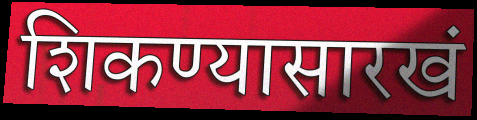
शिकण्यासारखं